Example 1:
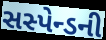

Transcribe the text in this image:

સસ્પેન્ડની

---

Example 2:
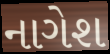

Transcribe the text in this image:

નાગેશ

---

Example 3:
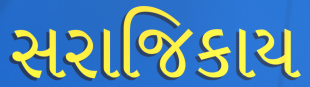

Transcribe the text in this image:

સરાજિકાય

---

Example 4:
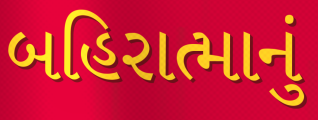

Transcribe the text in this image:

બહિરાત્માનું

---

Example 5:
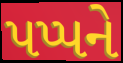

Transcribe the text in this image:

પપ્પને